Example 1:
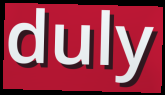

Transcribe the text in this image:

duly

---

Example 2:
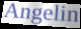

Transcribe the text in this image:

Angelin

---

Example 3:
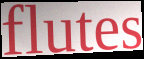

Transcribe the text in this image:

flutes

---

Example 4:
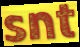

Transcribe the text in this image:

snt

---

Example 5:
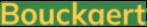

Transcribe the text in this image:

Bouckaert